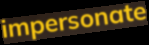
impersonate